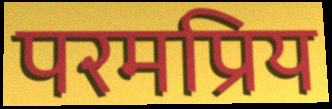
परमप्रिय